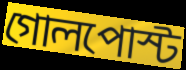
গোলপোস্ট